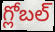
గ్లోబల్